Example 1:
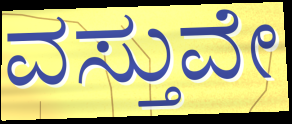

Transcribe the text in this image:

ವಸ್ತುವೇ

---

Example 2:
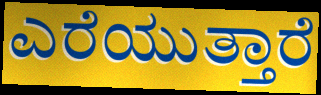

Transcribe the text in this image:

ಎರೆಯುತ್ತಾರೆ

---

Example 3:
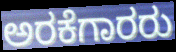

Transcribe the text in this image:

ಅರಕೆಗಾರರು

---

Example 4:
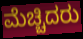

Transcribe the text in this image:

ಮೆಚ್ಚಿದರು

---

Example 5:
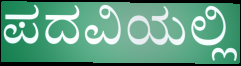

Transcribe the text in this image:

ಪದವಿಯಲ್ಲಿ